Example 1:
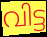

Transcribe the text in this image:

വിട്ട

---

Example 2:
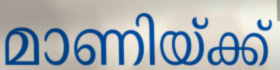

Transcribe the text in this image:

മാണിയ്ക്ക്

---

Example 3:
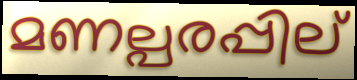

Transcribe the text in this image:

മണല്പരപ്പില്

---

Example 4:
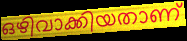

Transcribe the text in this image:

ഒഴിവാക്കിയതാണ്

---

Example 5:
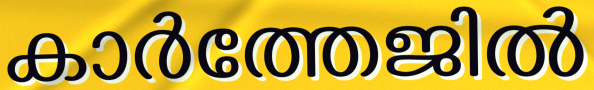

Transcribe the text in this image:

കാർത്തേജിൽ